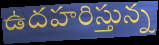
ఉదహరిస్తున్న